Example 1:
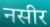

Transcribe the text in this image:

नसीर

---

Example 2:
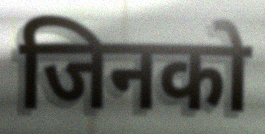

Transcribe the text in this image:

जिनको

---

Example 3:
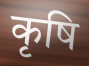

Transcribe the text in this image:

कृषि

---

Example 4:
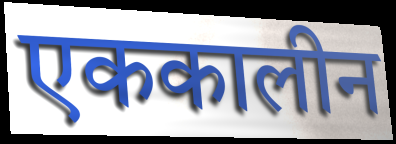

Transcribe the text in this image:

एककालीन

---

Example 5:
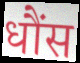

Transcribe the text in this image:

धौंस